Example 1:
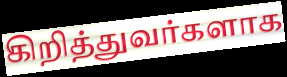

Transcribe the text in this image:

கிறித்துவர்களாக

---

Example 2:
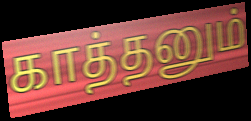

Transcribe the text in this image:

காத்தனும்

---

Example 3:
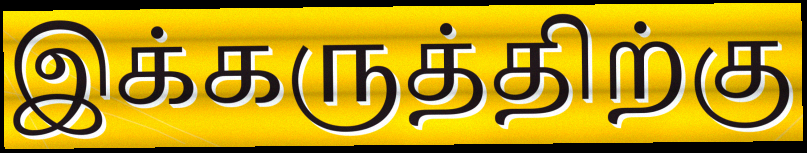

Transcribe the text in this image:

இக்கருத்திற்கு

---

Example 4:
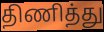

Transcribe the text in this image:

திணித்து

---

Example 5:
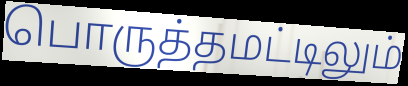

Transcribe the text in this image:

பொருத்தமட்டிலும்